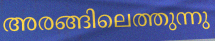
അരങ്ങിലെത്തുന്നു